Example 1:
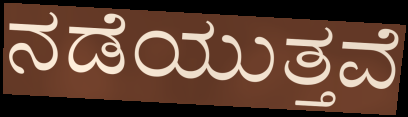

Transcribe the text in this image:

ನಡೆಯುತ್ತವೆ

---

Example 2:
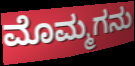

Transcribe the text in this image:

ಮೊಮ್ಮಗನು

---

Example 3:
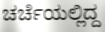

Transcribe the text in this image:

ಚರ್ಚೆಯಲ್ಲಿದ್ದ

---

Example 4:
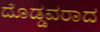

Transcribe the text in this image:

ದೊಡ್ಡವರಾದ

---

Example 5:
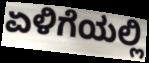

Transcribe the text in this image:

ಏಳಿಗೆಯಲ್ಲಿ